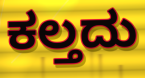
ಕಲ್ತದು